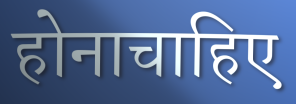
होनाचाहिए